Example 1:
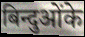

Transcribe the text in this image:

बिन्दुओंके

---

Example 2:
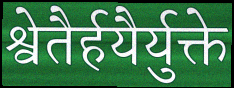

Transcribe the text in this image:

श्वेतैर्हयैर्युक्ते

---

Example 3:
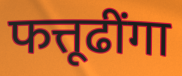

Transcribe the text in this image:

फत्तूढींगा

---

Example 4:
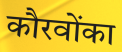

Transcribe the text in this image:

कौरवोंका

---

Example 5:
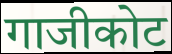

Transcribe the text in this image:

गाजीकोट